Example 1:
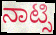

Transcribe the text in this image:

ನಾಟ್ಸಿ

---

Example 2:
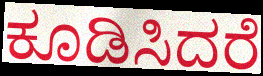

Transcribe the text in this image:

ಕೂಡಿಸಿದರೆ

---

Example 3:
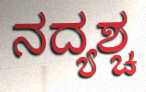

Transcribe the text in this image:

ನದ್ಯಶ್ಚ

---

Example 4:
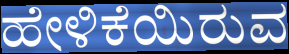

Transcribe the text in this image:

ಹೇಳಿಕೆಯಿರುವ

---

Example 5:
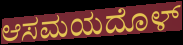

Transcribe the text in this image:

ಆಸಮಯದೊಳ್